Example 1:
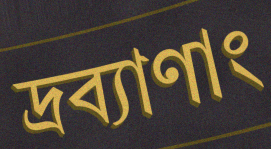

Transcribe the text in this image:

দ্রব্যাণাং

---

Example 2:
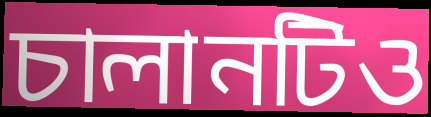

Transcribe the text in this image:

চালানটিও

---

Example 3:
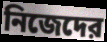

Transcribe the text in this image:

নিজেদের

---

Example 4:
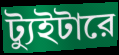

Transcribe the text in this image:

ট্যুইটারে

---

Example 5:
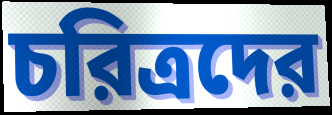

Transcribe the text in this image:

চরিত্রদের